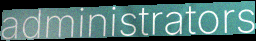
administrators